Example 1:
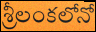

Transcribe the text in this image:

శ్రీలంకలోనో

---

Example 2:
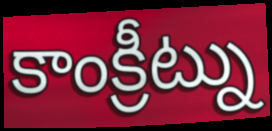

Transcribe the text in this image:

కాంక్రీట్ను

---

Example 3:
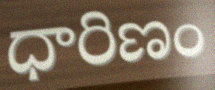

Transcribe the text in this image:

ధారిణం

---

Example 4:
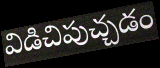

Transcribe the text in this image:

విడిచిపుచ్చడం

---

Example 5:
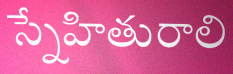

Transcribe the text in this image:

స్నేహితురాలి